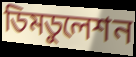
ডিমডুলেশন